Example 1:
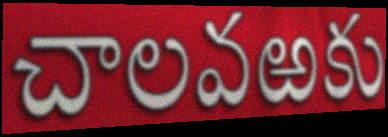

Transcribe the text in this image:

చాలవఱకు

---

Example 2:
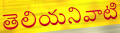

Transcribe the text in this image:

తెలియనివాటి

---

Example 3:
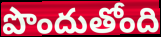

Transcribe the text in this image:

పొందుతోంది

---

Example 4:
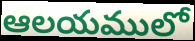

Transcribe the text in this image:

ఆలయములో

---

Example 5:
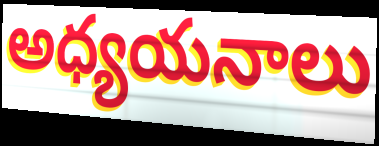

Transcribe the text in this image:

అధ్యయనాలు